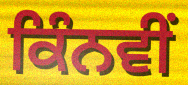
ਕਿੰਨਵੀਂ